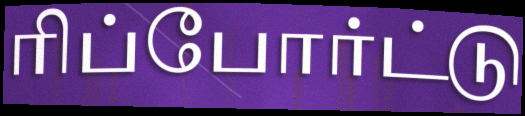
ரிப்போர்ட்டு